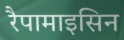
रैपामाइसिन